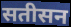
सतीसन